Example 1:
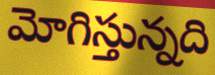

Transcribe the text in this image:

మోగిస్తున్నది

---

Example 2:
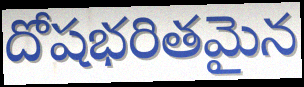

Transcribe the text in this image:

దోషభరితమైన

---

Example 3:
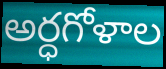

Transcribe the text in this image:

అర్ధగోళాల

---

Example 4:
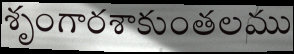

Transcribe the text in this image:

శృంగారశాకుంతలము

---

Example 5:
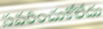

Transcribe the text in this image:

సవరించుకోలేదు